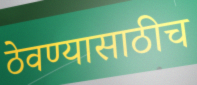
ठेवण्यासाठीच